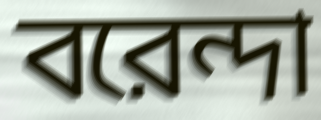
বরেন্দা